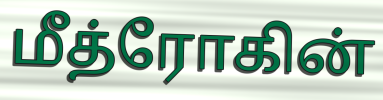
மீத்ரோகின்